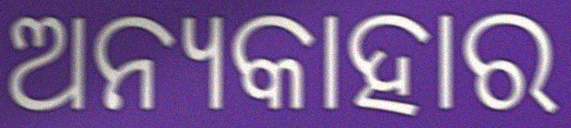
ଅନ୍ୟକାହାର